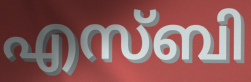
എസ്ബി